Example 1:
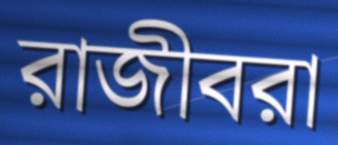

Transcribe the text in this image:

রাজীবরা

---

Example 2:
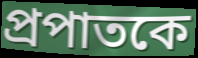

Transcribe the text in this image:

প্রপাতকে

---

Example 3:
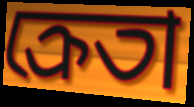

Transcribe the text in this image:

ক্রেতা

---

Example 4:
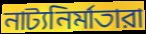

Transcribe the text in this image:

নাট্যনির্মাতারা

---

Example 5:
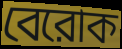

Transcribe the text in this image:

বেরোক